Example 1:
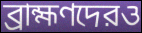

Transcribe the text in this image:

ব্রাহ্মণদেরও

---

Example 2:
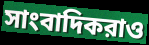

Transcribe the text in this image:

সাংবাদিকরাও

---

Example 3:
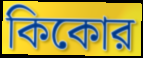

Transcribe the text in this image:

কিকোর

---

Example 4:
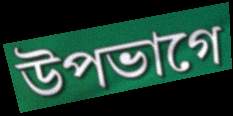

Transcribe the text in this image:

উপভাগে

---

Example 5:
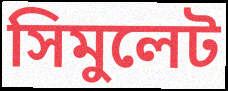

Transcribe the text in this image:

সিমুলেট